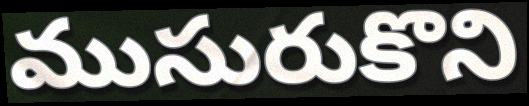
ముసురుకొని